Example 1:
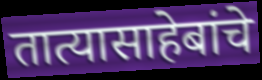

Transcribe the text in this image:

तात्यासाहेबांचे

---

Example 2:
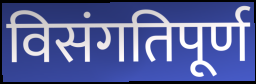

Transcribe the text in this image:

विसंगतिपूर्ण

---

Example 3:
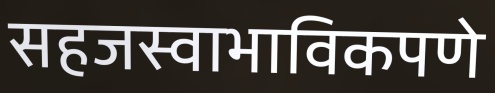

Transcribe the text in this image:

सहजस्वाभाविकपणे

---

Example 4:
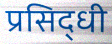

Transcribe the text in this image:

प्रसिद्धी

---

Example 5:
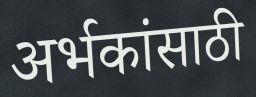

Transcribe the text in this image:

अर्भकांसाठी